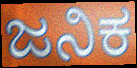
ಜನಿಕ